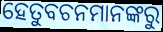
ହେତୁବଚନମାନଙ୍କରୁ